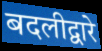
बदलीद्वारे